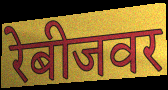
रेबीजवर